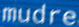
mudre